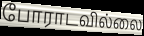
போராடவில்லை